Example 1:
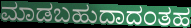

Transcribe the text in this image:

ಮಾಡಬಹುದಾದಂತಹ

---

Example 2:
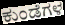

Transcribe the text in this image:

ಕುಂಡೆಗಳ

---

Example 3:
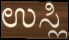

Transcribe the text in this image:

ಉಸ್ಲಿ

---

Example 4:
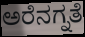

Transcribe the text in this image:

ಅರೆನಗ್ನತೆ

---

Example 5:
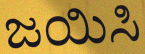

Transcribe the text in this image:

ಜಯಿಸಿ